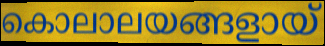
കൊലാലയങ്ങളായ്